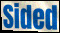
Sided